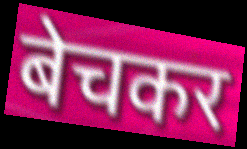
बेचकर